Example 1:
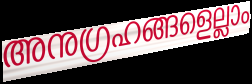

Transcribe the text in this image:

അനുഗ്രഹങ്ങളെല്ലാം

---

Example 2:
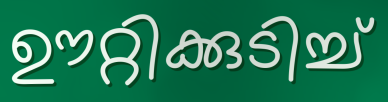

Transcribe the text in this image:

ഊറ്റിക്കുടിച്ച്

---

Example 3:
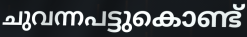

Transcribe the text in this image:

ചുവന്നപട്ടുകൊണ്ട്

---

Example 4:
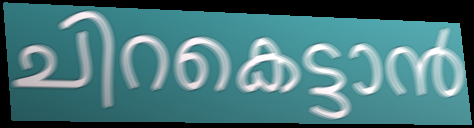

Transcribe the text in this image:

ചിറകെട്ടാൻ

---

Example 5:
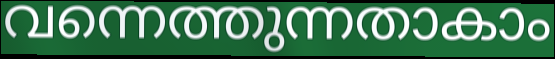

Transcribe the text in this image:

വന്നെത്തുന്നതാകാം